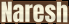
Naresh